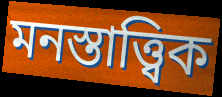
মনস্তাত্ত্বিক